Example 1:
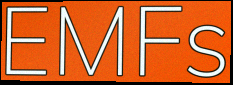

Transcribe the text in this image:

EMFs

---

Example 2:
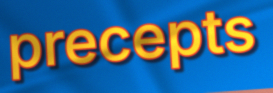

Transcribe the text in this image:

precepts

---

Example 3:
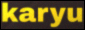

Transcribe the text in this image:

karyu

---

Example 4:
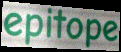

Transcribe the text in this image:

epitope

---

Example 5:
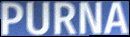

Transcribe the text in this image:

PURNA